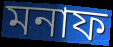
মনাফ